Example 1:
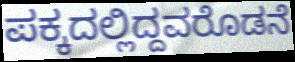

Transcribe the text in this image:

ಪಕ್ಕದಲ್ಲಿದ್ದವರೊಡನೆ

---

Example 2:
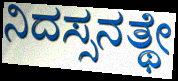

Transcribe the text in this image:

ನಿದಸ್ಸನತ್ಥೇ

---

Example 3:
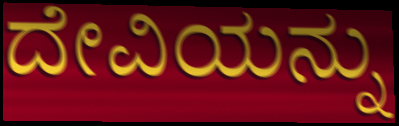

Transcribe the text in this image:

ದೇವಿಯನ್ನು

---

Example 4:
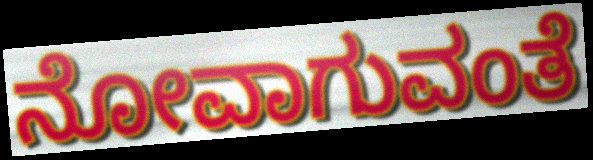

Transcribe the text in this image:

ನೋವಾಗುವಂತೆ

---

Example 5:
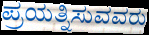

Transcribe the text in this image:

ಪ್ರಯತ್ನಿಸುವವರು